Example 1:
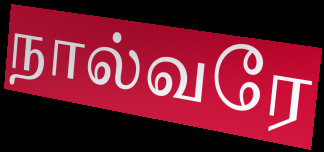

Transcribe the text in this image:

நால்வரே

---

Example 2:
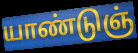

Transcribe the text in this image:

யாண்டுஞ்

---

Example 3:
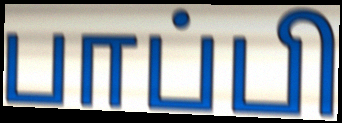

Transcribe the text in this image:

பாப்பி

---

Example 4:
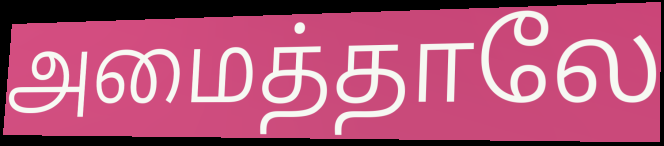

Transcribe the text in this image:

அமைத்தாலே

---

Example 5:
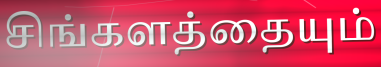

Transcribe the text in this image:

சிங்களத்தையும்